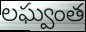
లఘ్వంత